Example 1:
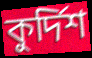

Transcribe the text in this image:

কুর্দিশ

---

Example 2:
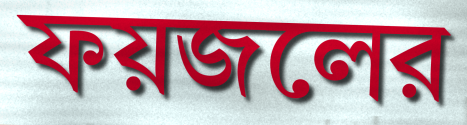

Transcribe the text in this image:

ফয়জলের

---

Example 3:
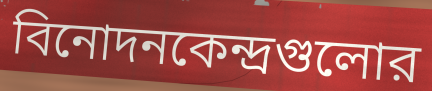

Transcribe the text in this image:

বিনোদনকেন্দ্রগুলোর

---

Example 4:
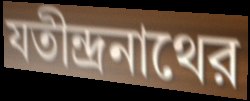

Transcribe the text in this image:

যতীন্দ্রনাথের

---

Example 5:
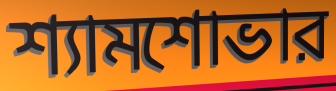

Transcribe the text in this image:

শ্যামশোভার